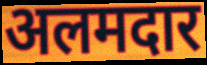
अलमदार